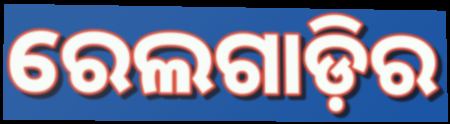
ରେଲଗାଡ଼ିର